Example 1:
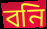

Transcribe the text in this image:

বনি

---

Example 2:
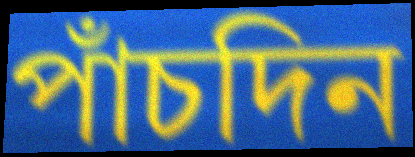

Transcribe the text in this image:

পাঁচদিন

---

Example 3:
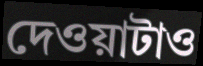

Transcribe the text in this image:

দেওয়াটাও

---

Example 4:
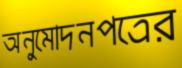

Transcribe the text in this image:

অনুমোদনপত্রের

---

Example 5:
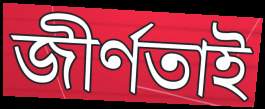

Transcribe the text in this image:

জীর্ণতাই